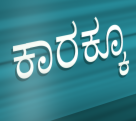
ಕಾರಕ್ಕೂ